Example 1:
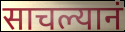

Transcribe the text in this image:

साचल्यानं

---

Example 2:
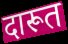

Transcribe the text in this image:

दारूत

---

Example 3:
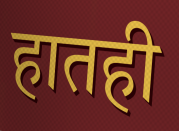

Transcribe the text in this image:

हातही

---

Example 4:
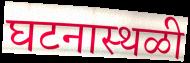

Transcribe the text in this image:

घटनास्थळी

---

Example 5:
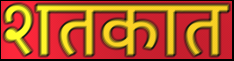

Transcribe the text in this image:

शतकात